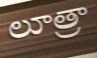
లూత్రా